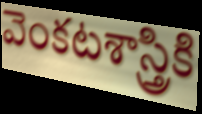
వెంకటశాస్త్రికి